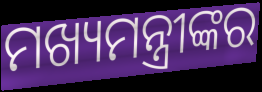
ମଖ୍ୟମନ୍ତ୍ରୀଙ୍କର